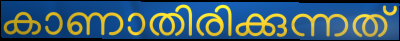
കാണാതിരിക്കുന്നത്